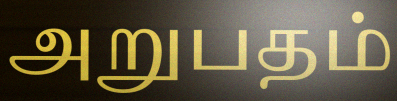
அறுபதம்